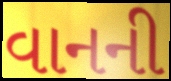
વાનની